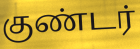
குண்டர்